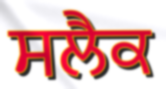
ਸਲੈਕ